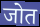
जोत